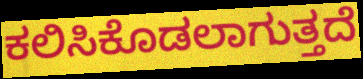
ಕಲಿಸಿಕೊಡಲಾಗುತ್ತದೆ